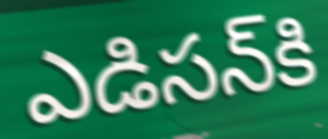
ఎడిసన్‌కి